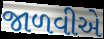
જાળવીએ